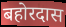
बहोरदास